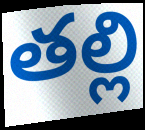
తల్లి